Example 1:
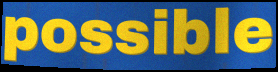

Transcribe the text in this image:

possible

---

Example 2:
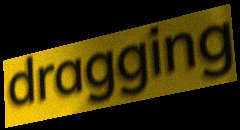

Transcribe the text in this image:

dragging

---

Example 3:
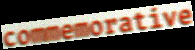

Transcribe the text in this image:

commemorative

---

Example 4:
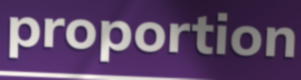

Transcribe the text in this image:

proportion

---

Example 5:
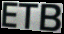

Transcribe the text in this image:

ETB